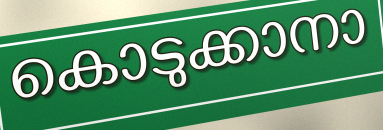
കൊടുക്കാനാ